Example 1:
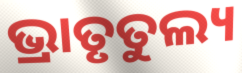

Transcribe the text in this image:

ଭ୍ରାତୃତୁଲ୍ୟ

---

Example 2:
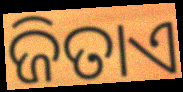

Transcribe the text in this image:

ଜିତାଏ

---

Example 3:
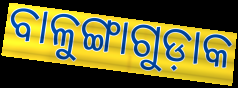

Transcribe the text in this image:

ବାଳୁଙ୍ଗାଗୁଡ଼ାକ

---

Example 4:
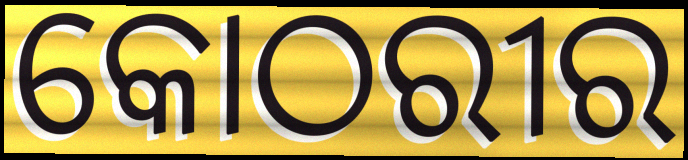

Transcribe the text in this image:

କୋଠରୀର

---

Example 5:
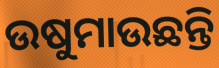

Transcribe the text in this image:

ଉଷୁମାଉଛନ୍ତି